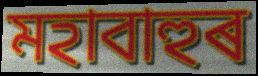
মহাবাহুৰ